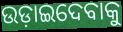
ଉଡ଼ାଇଦେବାକୁ